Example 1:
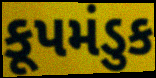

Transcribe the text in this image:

કૂપમંડુક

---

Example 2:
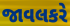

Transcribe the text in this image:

જાવલકરે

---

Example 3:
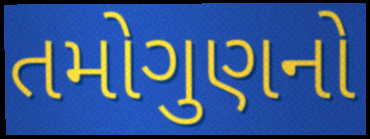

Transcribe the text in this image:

તમોગુણનો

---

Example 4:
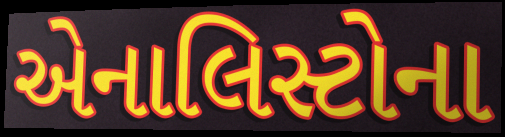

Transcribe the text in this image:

એનાલિસ્ટોના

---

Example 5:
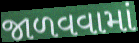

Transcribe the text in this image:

જાળવવામાં